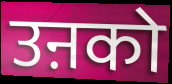
उऩको